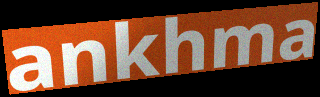
ankhma